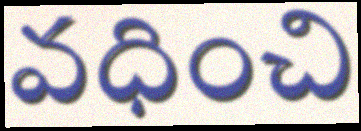
వధించి